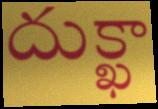
దుక్ఖా